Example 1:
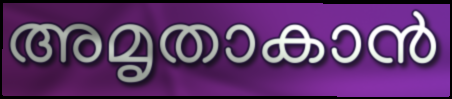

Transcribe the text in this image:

അമൃതാകാൻ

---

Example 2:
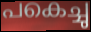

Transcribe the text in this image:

പകെച്ചു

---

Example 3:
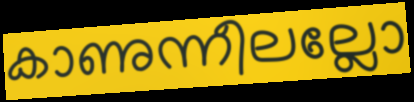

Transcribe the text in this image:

കാണുന്നീലല്ലോ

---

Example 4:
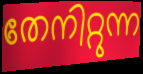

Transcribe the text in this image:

തേനിറ്റുന്ന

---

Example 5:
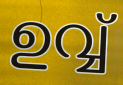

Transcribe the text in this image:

ഉവ്വ്